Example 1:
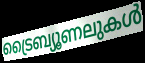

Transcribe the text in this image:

ട്രൈബ്യൂണലുകൾ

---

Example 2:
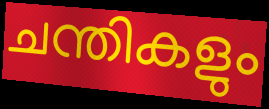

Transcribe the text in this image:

ചന്തികളും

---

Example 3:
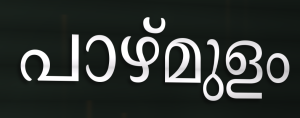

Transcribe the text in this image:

പാഴ്മുളം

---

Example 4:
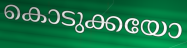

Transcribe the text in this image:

കൊടുക്കയോ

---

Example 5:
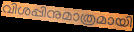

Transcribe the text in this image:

വിശപ്പിനുമാത്രമായി